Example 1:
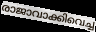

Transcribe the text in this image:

രാജാവാക്കിവെച്ച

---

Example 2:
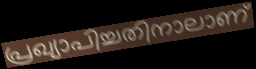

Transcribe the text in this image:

പ്രഖ്യാപിച്ചതിനാലാണ്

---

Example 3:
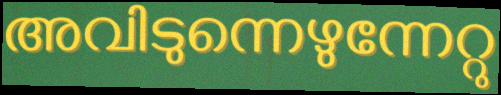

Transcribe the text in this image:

അവിടുന്നെഴുന്നേറ്റു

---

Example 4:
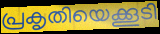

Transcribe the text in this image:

പ്രകൃതിയെക്കൂടി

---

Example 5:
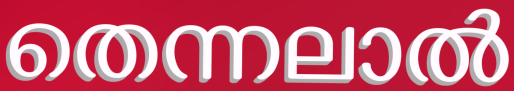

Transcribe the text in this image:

തെന്നലാൽ